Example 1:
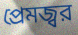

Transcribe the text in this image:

প্রেমজ্বর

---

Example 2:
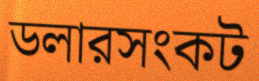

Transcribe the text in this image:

ডলারসংকট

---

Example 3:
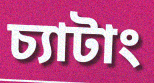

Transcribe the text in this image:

চ্যাটাং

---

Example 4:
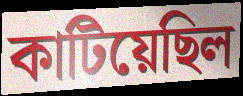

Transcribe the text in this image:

কাটিয়েছিল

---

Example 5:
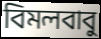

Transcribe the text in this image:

বিমলবাবু